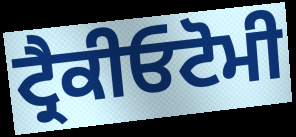
ਟ੍ਰੈਕੀਓਟੋਮੀ